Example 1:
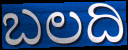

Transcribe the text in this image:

ಬಲದಿ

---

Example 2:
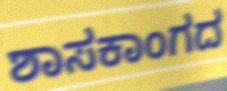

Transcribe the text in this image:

ಶಾಸಕಾಂಗದ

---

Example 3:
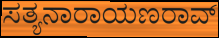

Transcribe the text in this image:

ಸತ್ಯನಾರಾಯಣರಾವ್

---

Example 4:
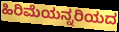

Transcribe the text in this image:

ಹಿರಿಮೆಯನ್ನರಿಯದ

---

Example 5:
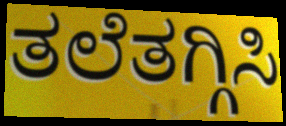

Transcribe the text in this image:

ತಲೆತಗ್ಗಿಸಿ